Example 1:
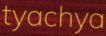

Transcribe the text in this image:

tyachya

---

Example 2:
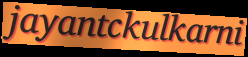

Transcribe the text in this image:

jayantckulkarni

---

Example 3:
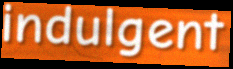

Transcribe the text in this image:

indulgent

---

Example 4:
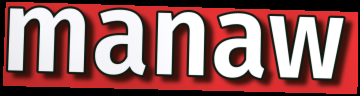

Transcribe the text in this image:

manaw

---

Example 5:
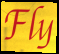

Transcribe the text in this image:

Fly